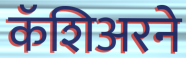
कॅशिअरने